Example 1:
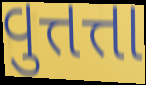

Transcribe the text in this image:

વુત્તત્તા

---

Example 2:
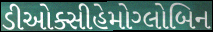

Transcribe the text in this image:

ડીઓક્સીહેમોગ્લોબિન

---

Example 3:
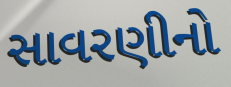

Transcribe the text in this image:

સાવરણીનો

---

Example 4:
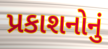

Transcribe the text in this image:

પ્રકાશનોનું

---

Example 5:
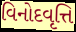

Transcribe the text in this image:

વિનોદવૃત્તિ